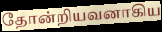
தோன்றியவனாகிய